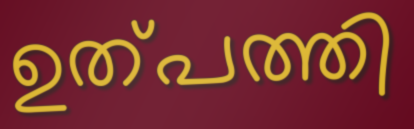
ഉത്പത്തി